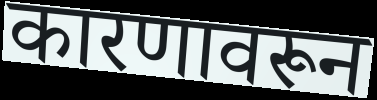
कारणावरून